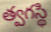
త్వగస్థి